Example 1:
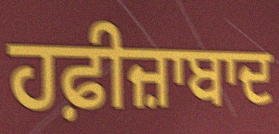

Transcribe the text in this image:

ਹਫ਼ੀਜ਼ਾਬਾਦ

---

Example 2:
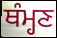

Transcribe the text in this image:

ਥੰਮ੍ਹਣ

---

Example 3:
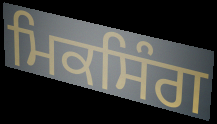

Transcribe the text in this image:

ਮਿਕਸਿੰਗ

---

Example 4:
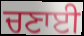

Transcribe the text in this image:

ਚਣਾਈ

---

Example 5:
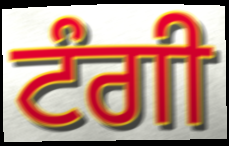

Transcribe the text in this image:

ਟੰਗੀ